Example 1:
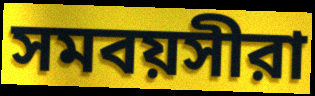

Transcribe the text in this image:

সমবয়সীরা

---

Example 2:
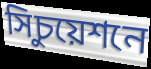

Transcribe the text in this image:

সিচুয়েশনে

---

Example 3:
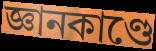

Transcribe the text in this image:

জ্ঞানকাণ্ডে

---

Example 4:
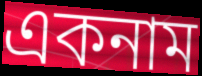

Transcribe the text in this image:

একনাম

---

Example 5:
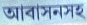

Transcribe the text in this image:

আবাসনসহ